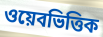
ওয়েবভিত্তিক